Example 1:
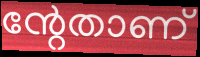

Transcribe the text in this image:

ന്റേതാണ്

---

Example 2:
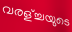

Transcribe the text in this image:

വരള്ച്ചയുടെ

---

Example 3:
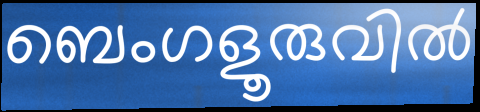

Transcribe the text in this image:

ബെംഗളൂരുവിൽ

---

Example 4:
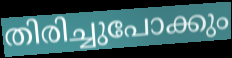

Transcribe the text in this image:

തിരിച്ചുപോക്കും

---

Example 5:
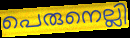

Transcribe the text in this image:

പെരുനെല്ലി